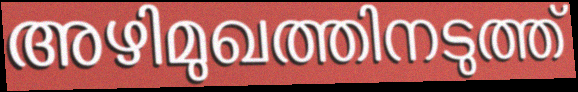
അഴിമുഖത്തിനടുത്ത്